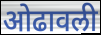
ओढावली